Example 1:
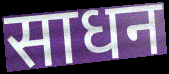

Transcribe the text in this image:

साधन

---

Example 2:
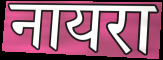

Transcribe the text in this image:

नायरा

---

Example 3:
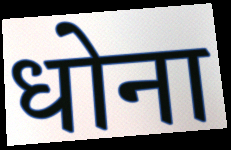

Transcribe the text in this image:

धोना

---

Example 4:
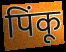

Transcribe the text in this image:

पिंकू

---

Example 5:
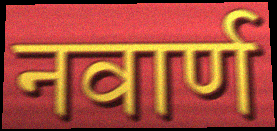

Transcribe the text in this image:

नवार्ण